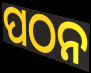
ପଠନ